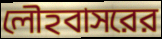
লৌহবাসরের